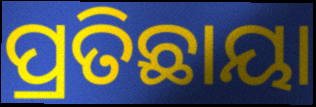
ପ୍ରତିଛାୟା